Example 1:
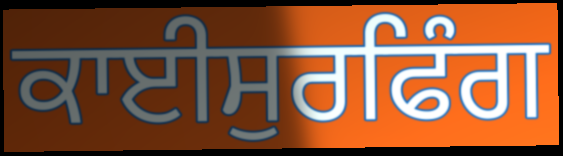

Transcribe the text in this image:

ਕਾਈਸੁਰਫਿੰਗ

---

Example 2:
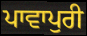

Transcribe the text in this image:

ਪਾਵਾਪੁਰੀ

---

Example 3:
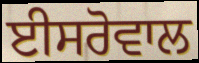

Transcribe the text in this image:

ਈਸਰੋਵਾਲ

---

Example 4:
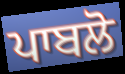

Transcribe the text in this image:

ਪਾਬਲੋ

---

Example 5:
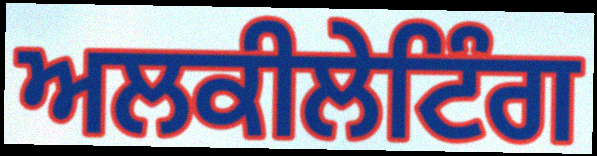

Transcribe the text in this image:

ਅਲਕੀਲੇਟਿੰਗ